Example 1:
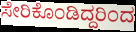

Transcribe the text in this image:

ಸೇರಿಕೊಂಡಿದ್ದರಿಂದ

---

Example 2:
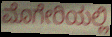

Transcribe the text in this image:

ಮೊಗೇರಿಯಲ್ಲಿ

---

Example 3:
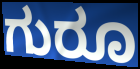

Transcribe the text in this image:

ಗುರೂ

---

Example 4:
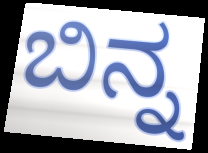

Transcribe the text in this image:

ಬಿನ್ನ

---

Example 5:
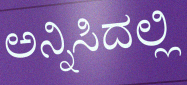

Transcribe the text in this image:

ಅನ್ನಿಸಿದಲ್ಲಿ